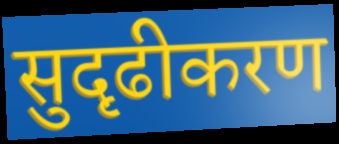
सुदृढीकरण